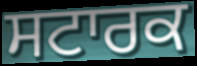
ਸਟਾਰਕ